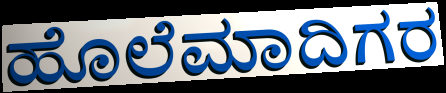
ಹೊಲೆಮಾದಿಗರ